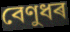
বেণুধৰ